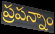
ప్రపన్నాం